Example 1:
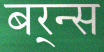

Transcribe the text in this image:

बर्न्स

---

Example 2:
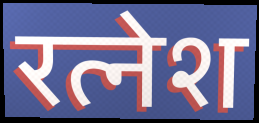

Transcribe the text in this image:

रत्नेश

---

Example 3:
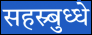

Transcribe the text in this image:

सहस्र्बुध्धे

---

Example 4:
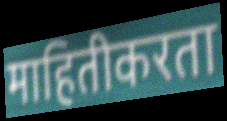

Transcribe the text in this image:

माहितीकरता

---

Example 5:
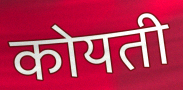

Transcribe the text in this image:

कोयती